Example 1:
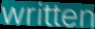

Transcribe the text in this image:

written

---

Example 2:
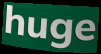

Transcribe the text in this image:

huge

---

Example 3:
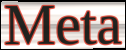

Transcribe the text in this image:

Meta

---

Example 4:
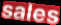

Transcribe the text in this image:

sales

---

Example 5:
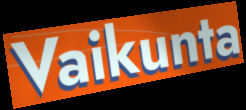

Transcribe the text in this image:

Vaikunta